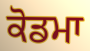
ਕੋਡਮਾ